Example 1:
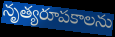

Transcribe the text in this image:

నృత్యరూపకాలను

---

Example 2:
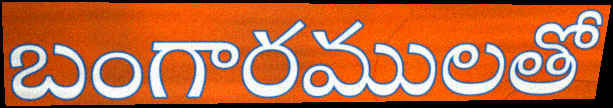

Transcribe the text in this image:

బంగారములతో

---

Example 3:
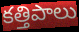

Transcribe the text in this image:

కత్తిపాలు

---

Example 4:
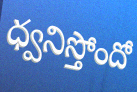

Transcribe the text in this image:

ధ్వనిస్తోందో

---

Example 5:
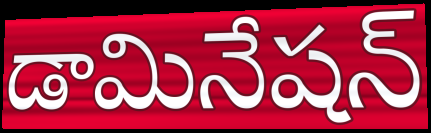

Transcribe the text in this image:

డామినేషన్